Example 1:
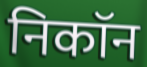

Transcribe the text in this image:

निकॉन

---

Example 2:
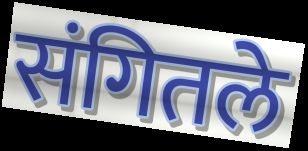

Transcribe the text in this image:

संगितले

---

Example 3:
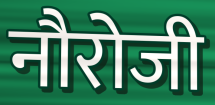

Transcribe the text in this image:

नौरोजी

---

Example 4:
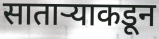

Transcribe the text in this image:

साताऱ्याकडून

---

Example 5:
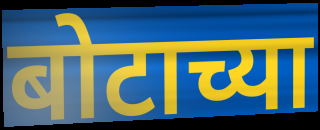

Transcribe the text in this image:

बोटाच्या